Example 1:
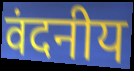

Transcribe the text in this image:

वंदनीय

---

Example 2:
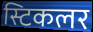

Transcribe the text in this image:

स्टिकलर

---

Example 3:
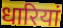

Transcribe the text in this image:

धारियां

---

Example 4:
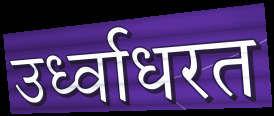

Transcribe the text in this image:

उर्ध्वाधरत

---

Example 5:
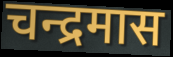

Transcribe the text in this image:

चन्द्रमास